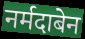
नर्मदाबेन